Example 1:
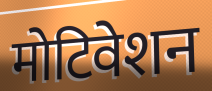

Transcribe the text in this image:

मोटिवेशन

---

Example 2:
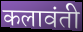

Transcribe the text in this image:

कलावंती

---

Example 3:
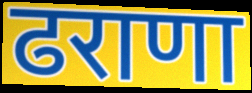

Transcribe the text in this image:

ढराणा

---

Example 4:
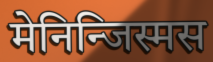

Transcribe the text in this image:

मेनिन्जिस्मस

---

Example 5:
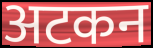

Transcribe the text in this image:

अटकन